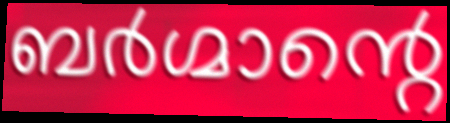
ബർഗ്മാന്റെ